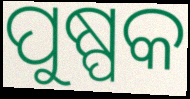
ପୁଷ୍ପକ